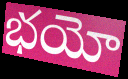
భయో